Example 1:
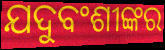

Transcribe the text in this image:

ଯଦୁବଂଶୀଙ୍କର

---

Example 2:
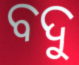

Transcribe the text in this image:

ବଦୁ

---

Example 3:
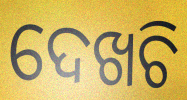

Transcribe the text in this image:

ଦେଖଚି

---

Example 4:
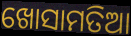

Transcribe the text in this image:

ଖୋସାମତିଆ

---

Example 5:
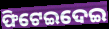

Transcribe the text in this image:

ଫିଟେଇଦେଇ